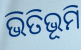
ଭିତିଭୂମି